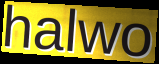
halwo